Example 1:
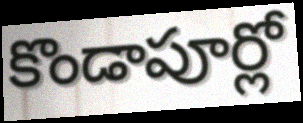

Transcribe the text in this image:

కొండాపూర్లో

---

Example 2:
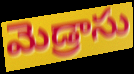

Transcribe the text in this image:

మెడ్రాసు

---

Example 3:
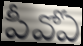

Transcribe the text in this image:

పీవోఏ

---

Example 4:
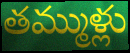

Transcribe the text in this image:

తమ్ముళ్లు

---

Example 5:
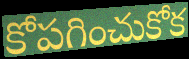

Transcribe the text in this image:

కోపగించుకోక